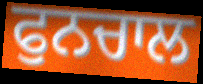
ਫੁਨਚਾਲ